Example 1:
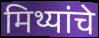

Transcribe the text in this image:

मिथ्यांचे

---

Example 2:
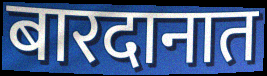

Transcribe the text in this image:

बारदानात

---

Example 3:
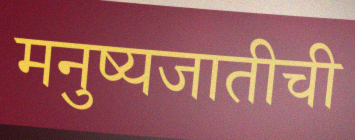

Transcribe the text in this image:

मनुष्यजातीची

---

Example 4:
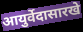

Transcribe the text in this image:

आयुर्वेदासारखे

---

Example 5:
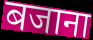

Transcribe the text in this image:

बजाना